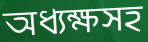
অধ্যক্ষসহ